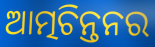
ଆତ୍ମଚିନ୍ତନର